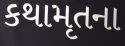
કથામૃતના